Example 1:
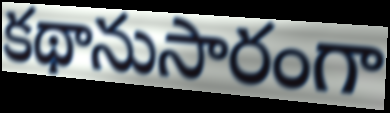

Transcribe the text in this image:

కథానుసారంగా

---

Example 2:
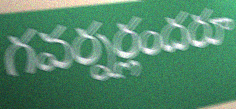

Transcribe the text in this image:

గవర్నర్లందరూ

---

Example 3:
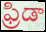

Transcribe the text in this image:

ఫ్రిడా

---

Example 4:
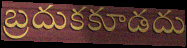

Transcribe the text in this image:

బ్రదుకకూడదు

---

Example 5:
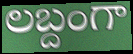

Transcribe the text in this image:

లబ్దంగా